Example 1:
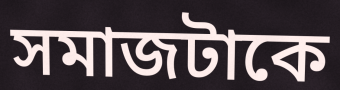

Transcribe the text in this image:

সমাজটাকে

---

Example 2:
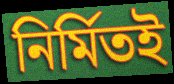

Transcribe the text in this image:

নির্মিতই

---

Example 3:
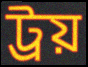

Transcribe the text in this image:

ট্রয়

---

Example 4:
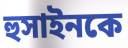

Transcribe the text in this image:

হুসাইনকে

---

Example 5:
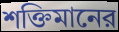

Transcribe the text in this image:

শক্তিমানের